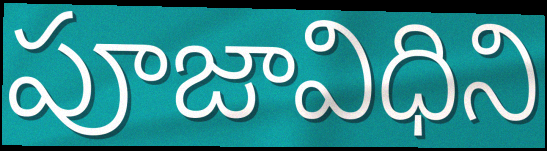
పూజావిధిని